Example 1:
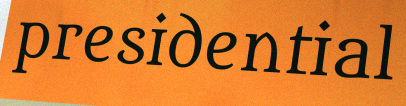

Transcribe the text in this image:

presidential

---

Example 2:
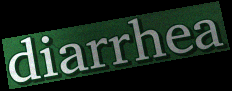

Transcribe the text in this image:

diarrhea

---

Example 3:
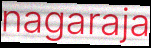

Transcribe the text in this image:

nagaraja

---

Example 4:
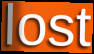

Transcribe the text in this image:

lost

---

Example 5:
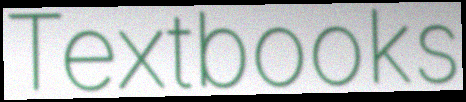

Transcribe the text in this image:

Textbooks